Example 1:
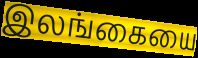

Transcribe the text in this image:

இலங்கையை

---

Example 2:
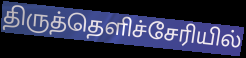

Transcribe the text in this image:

திருத்தெளிச்சேரியில்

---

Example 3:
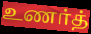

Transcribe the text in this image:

உணர்த்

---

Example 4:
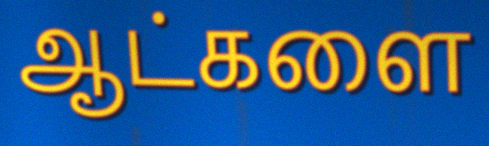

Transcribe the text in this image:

ஆட்களை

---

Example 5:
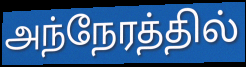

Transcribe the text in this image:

அந்நேரத்தில்